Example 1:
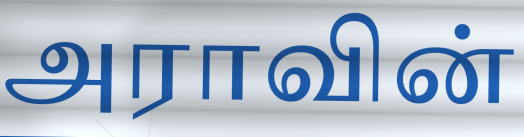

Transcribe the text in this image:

அராவின்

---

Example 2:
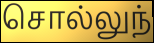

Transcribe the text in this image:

சொல்லுந்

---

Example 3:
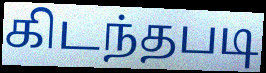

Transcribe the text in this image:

கிடந்தபடி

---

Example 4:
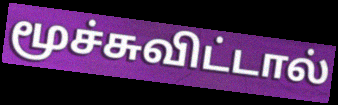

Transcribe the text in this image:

மூச்சுவிட்டால்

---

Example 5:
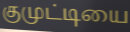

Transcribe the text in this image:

குமுட்டியை